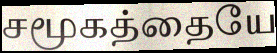
சமூகத்தையே